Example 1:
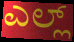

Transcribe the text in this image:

ಎಲ್ಲ್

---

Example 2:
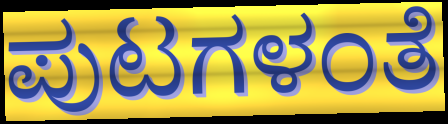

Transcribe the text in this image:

ಪುಟಗಳಂತೆ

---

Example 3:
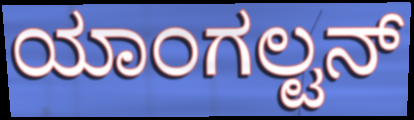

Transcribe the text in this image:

ಯಾಂಗಲ್ಟನ್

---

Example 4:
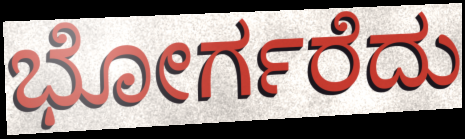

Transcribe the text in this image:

ಭೋರ್ಗರೆದು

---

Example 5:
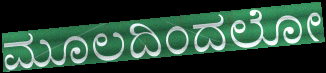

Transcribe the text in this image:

ಮೂಲದಿಂದಲೋ